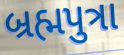
બ્રહ્મપુત્રા